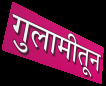
गुलामीतून